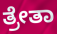
ತ್ರೇತಾ